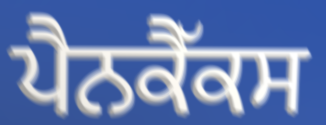
ਪੈਨਕੈੱਕਸ